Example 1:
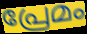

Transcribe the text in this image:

പ്രേമം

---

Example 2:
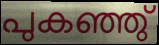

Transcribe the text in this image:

പുകഞ്ഞു്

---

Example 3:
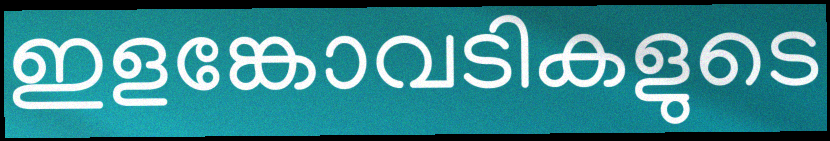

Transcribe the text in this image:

ഇളങ്കോവടികളുടെ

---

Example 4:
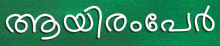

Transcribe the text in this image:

ആയിരംപേർ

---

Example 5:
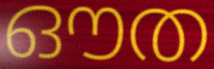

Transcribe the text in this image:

ഔത